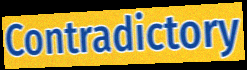
Contradictory